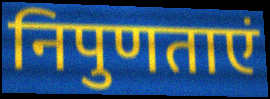
निपुणताएं